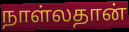
நாள்லதான்